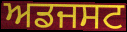
ਅਡਜਸਟ